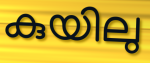
കുയിലു